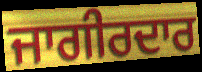
ਜਾਗੀਰਦਾਰ